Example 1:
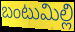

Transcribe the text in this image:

బంటుమిల్లి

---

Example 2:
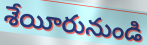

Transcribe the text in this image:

శేయీరునుండి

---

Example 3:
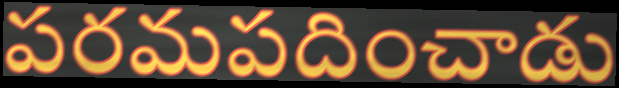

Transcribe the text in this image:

పరమపదించాడు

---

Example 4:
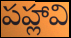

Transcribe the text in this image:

పహ్లావి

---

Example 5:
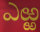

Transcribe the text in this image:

ఎఱ్ఱ